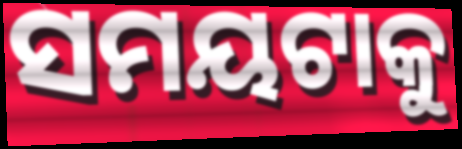
ସମୟଟାକୁ